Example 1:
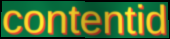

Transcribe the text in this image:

contentid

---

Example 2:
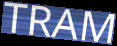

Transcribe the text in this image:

TRAM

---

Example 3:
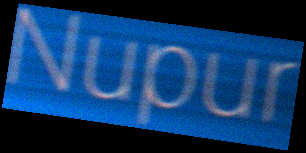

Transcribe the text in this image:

Nupur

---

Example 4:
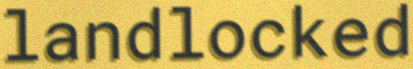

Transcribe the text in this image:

landlocked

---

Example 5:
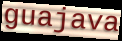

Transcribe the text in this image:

guajava